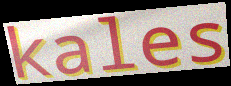
kales